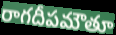
రాగదీపమౌతూ